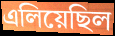
এলিয়েছিল